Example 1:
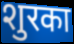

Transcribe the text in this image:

शुरका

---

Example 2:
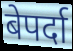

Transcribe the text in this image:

बेपर्दा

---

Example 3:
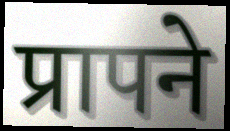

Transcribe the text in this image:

प्रापने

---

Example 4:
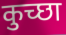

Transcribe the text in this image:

कुच्छा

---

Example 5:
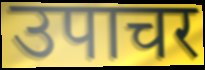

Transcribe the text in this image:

उपाचर